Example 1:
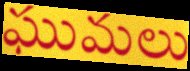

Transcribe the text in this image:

ఘుమలు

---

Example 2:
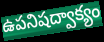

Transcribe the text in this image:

ఉపనిషద్వాక్యం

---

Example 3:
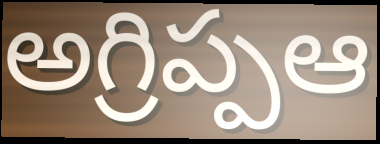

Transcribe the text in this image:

అగ్రిప్పఆ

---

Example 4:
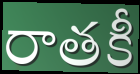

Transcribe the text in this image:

రాతకీ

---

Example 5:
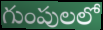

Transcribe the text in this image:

గుంపులలో